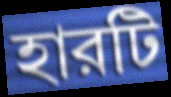
হারটি